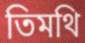
তিমথি